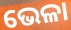
ଭେଳା